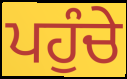
ਪਹੁੰਚੇ